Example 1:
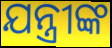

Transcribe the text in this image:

ଯନ୍ତ୍ରୀଙ୍କ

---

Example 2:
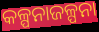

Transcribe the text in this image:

କଳ୍ପନାଜଳ୍ପନା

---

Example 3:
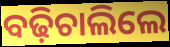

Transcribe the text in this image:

ବଢ଼ିଚାଲିଲେ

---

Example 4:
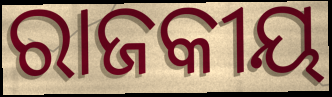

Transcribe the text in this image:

ରାଜକୀୟ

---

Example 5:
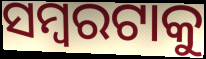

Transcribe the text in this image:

ସମ୍ବରଟାକୁ